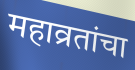
महाव्रतांचा